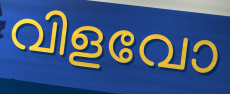
വിളവോ